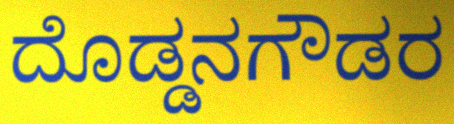
ದೊಡ್ಡನಗೌಡರ